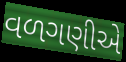
વળગણીએ